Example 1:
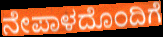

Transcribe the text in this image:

ನೇಪಾಳದೊಂದಿಗೆ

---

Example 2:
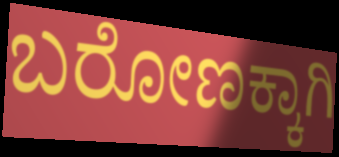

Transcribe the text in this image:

ಬರೋಣಕ್ಕಾಗಿ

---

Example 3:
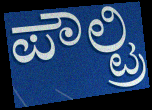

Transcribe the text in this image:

ಪೌಲ್ಟ್ರಿ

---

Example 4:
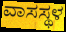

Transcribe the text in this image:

ವಾಸಸ್ಥಳ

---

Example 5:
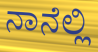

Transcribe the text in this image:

ನಾನೆಲ್ಲಿ